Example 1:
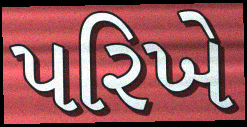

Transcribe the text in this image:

પરિખે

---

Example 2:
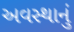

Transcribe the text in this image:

અવસ્થાનું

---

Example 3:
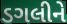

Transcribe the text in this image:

ડગલીને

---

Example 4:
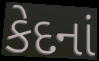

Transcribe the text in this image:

કેદનાં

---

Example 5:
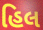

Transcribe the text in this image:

હિલ